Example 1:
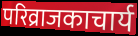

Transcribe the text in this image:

परिव्राजकाचार्य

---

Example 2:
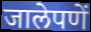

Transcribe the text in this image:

जालेपणें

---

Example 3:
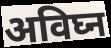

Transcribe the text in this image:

अविघ्न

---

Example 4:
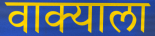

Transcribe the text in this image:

वाक्याला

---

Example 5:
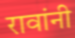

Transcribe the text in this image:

रावांनी